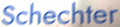
Schechter